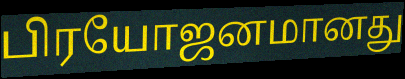
பிரயோஜனமானது